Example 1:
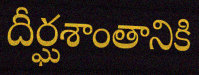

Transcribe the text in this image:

దీర్ఘశాంతానికి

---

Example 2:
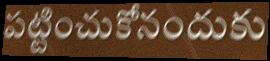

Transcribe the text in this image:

పట్టించుకోనందుకు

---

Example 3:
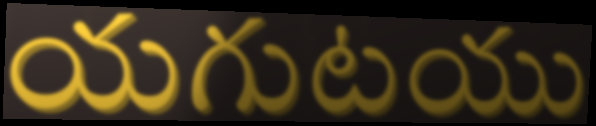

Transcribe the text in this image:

యగుటయు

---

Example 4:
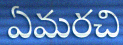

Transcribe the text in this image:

ఏమరచి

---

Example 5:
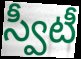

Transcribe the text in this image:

స్వీటీ